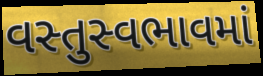
વસ્તુસ્વભાવમાં